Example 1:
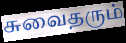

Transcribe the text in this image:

சுவைதரும்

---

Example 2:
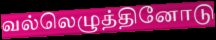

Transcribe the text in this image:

வல்லெழுத்தினோடு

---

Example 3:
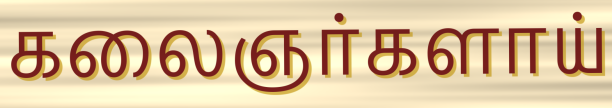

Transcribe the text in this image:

கலைஞர்களாய்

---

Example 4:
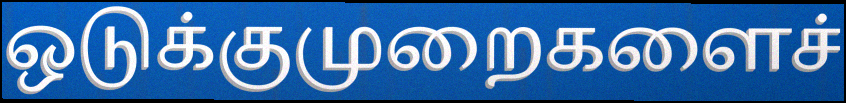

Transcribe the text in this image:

ஒடுக்குமுறைகளைச்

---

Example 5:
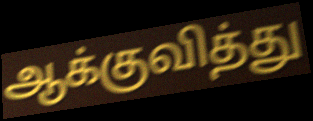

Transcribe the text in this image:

ஆக்குவித்து